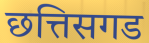
छत्तिसगड